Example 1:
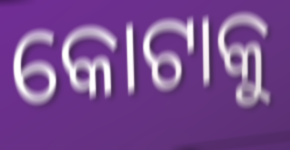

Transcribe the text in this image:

କୋଟାକୁ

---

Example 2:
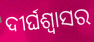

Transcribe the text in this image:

ଦୀର୍ଘଶ୍ବାସର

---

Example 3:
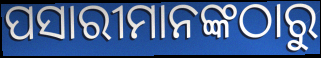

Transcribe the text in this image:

ପସାରୀମାନଙ୍କଠାରୁ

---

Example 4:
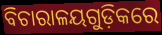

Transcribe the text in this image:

ବିଚାରାଳୟଗୁଡ଼ିକରେ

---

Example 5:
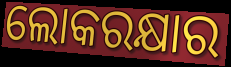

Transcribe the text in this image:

ଲୋକରକ୍ଷାର